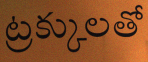
ట్రక్కులతో